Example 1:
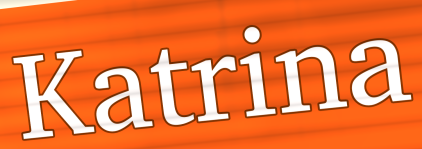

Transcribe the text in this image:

Katrina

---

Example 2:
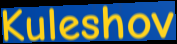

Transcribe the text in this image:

Kuleshov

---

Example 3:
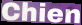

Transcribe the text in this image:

Chien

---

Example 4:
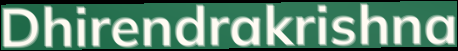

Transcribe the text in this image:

Dhirendrakrishna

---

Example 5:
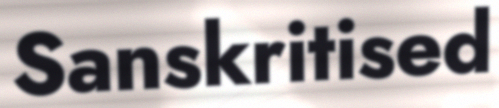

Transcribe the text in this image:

Sanskritised